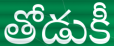
తోడుకీ